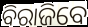
ବିରାଜିବେ